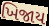
ખિજાય